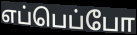
எப்பெப்போ